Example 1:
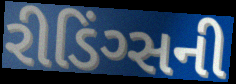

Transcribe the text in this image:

રીડિંગ્સની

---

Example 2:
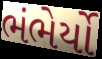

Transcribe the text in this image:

ભંભેર્યો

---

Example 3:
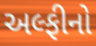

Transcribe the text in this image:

અલ્ફીનો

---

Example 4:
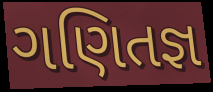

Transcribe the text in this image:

ગણિતજ્ઞ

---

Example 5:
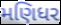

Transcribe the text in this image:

મણિધર